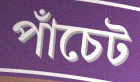
পাঁচেট